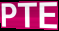
PTE